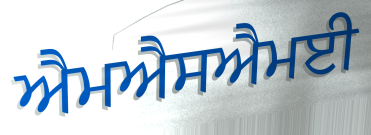
ਐਮਐਸਐਮਈ